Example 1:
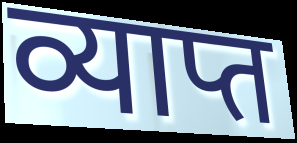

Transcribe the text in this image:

व्याप्त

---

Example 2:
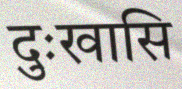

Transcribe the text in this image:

दुःखासि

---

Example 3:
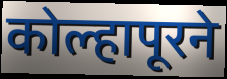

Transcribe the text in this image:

कोल्हापूरने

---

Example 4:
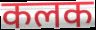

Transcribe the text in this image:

कलक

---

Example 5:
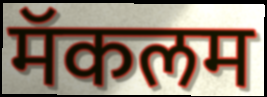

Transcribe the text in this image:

मॅकलम